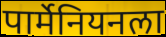
पार्मेनियनला